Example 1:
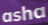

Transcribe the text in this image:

asha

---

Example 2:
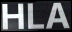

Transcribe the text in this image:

HLA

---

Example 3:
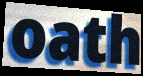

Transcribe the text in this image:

oath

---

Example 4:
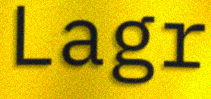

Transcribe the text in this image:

Lagr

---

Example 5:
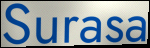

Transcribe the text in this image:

Surasa